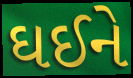
ઘઈને